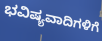
ಭವಿಷ್ಯವಾದಿಗಳಿಗೆ